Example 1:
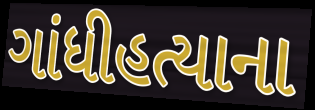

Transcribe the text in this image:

ગાંધીહત્યાના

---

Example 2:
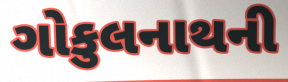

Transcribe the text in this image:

ગોકુલનાથની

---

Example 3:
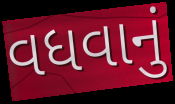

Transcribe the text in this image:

વધવાનું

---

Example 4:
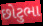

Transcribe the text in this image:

છોટુભા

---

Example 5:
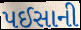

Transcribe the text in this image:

પઈસાની